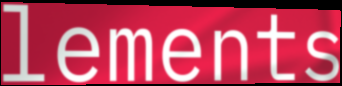
lements